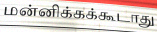
மன்னிக்கக்கூடாது